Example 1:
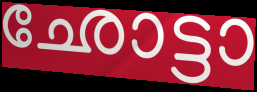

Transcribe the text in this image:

ഛോട്ടാ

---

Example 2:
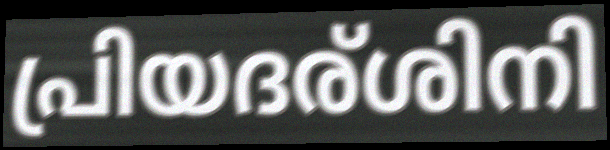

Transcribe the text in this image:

പ്രിയദര്ശിനി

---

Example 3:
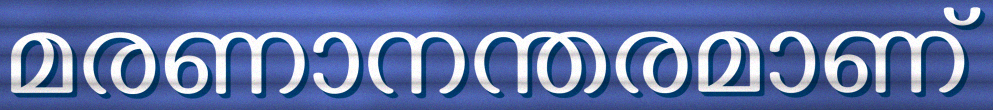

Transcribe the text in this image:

മരണാനന്തരമാണ്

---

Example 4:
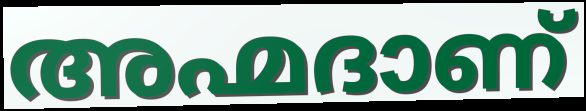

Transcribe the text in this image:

അഹ്മദാണ്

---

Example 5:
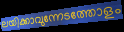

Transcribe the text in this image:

ലയിക്കാവുന്നേടത്തോളം